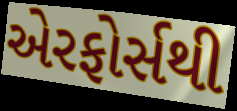
એરફોર્સથી